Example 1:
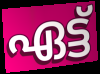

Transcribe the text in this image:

ഏട്ട്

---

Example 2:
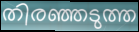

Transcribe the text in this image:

തിരഞ്ഞടുത്ത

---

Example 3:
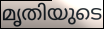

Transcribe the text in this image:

മൃതിയുടെ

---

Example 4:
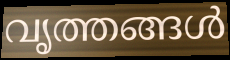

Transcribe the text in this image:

വൃത്തങ്ങൾ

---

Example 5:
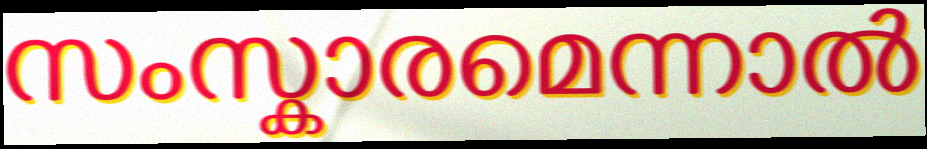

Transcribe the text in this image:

സംസ്കാരമെന്നാൽ